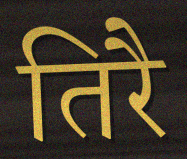
तिरै